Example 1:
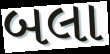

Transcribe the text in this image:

બલા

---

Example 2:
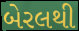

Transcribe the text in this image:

બેરલથી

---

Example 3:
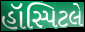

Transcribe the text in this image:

હૉસ્પિટલે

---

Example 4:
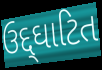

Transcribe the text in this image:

ઉદ્દ્ઘાટિત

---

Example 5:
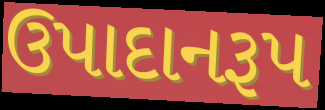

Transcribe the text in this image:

ઉપાદાનરૂપ